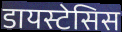
डायस्टेसिस